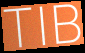
TIB